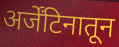
अर्जेंटिनातून